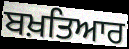
ਬਖ਼ਤਿਆਰ